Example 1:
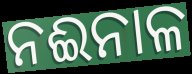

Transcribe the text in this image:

ନଈନାଳ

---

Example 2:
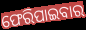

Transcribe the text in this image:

ଫେରିପାଇବାର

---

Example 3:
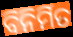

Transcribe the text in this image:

ବିନିର୍ମିତ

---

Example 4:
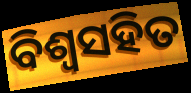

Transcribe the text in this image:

ବିଶ୍ଵସହିତ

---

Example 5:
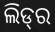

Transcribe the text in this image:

ଲିଡ୍‌ର